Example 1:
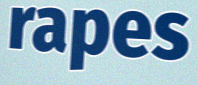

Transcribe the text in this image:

rapes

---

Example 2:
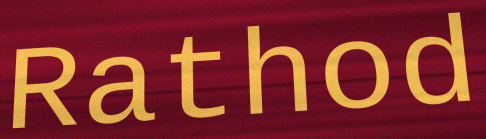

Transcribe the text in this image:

Rathod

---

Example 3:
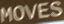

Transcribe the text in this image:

MOVES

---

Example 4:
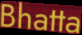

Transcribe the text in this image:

Bhatta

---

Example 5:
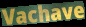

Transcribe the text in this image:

Vachave